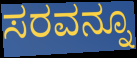
ಸರವನ್ನೂ